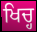
ਖਿਚ੍ਹ